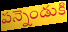
పన్నెండుకి